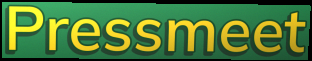
Pressmeet